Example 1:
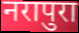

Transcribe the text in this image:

नरापुरा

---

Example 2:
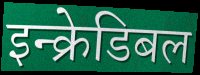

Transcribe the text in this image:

इन्क्रेडिबल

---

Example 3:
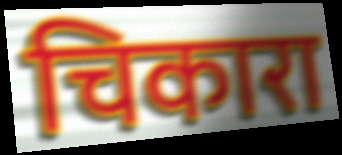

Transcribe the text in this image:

चिकारा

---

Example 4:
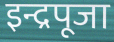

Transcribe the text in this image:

इन्द्रपूजा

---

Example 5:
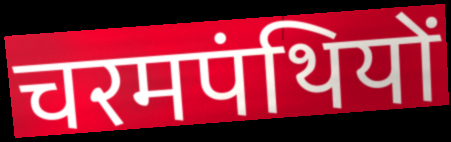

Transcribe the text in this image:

चरमपंथियों